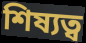
শিষ্যত্ব